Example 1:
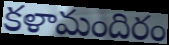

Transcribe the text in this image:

కళామందిరం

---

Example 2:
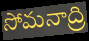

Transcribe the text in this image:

సోమనాద్రి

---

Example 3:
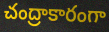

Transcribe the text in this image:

చంద్రాకారంగా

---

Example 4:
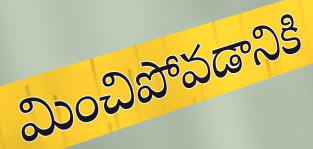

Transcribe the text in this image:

మించిపోవడానికి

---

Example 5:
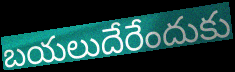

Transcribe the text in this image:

బయలుదేరేందుకు